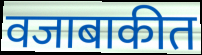
वजाबाकीत